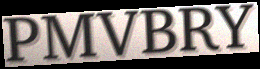
PMVBRY